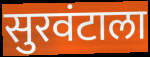
सुरवंटाला